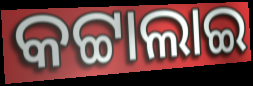
କଟ୍ଟାଲାଇ